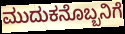
ಮುದುಕನೊಬ್ಬನಿಗೆ